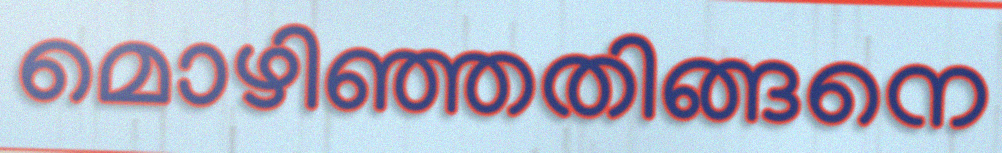
മൊഴിഞ്ഞതിങ്ങനെ